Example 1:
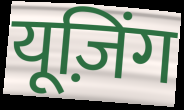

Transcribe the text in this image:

यूज़िंग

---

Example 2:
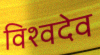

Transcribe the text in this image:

विश्वदेव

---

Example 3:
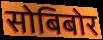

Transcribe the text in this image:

सोबिबोर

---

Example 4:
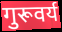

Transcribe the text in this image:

गुरूवर्य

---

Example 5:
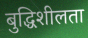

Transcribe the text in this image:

बुद्धिशीलता